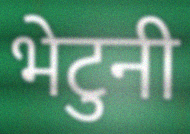
भेटुनी